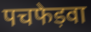
पचफेड़वा